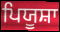
ਪਿਯੂਸ਼ਾ